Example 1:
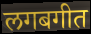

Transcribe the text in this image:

लगबगीत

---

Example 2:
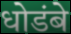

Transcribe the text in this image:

धोडंबे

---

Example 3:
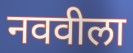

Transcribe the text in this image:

नववीला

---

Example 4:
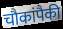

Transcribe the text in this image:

चौकांपैकी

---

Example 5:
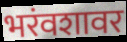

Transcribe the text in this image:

भरंवशावर